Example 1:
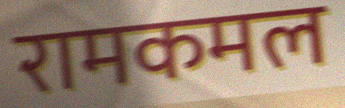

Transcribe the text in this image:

रामकमल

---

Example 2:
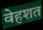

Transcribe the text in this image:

वेहशत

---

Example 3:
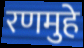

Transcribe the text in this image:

रणमुहे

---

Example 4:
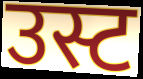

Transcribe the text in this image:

उस्ट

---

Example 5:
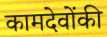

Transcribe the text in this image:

कामदेवोंकी